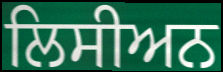
ਲਿਸੀਅਨ